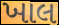
ખાલ